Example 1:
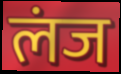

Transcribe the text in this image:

लंज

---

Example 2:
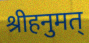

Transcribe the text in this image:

श्रीहनुमत्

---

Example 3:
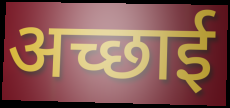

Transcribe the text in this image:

अच्छाई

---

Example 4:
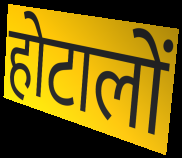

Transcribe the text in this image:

होटालों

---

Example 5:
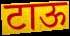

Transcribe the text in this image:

टाऊ